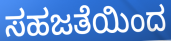
ಸಹಜತೆಯಿಂದ